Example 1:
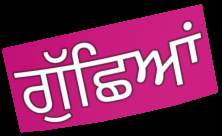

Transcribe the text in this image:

ਗੁੱਛਿਆਂ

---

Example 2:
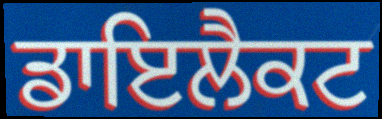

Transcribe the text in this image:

ਡਾਇਲੈਕਟ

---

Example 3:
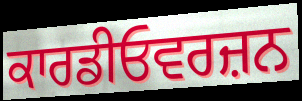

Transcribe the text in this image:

ਕਾਰਡੀਓਵਰਜ਼ਨ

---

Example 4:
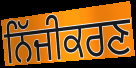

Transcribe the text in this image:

ਨਿੱਜੀਕਰਣ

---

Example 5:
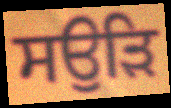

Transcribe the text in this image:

ਸਉੜਿ